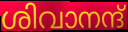
ശിവാനന്ദ്